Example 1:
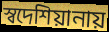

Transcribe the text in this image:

স্বদেশিয়ানায়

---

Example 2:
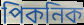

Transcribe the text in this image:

পিকনিক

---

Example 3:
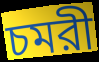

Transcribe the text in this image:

চমরী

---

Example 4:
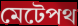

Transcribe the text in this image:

মেটেপথ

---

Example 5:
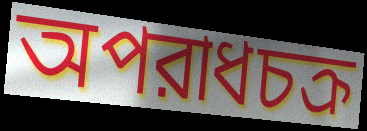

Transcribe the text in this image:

অপরাধচক্র